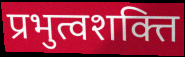
प्रभुत्वशक्ति